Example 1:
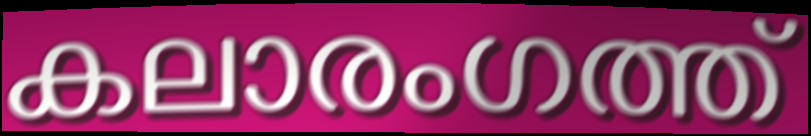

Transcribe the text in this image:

കലാരംഗത്ത്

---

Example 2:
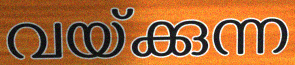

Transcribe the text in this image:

വയ്‌ക്കുന്ന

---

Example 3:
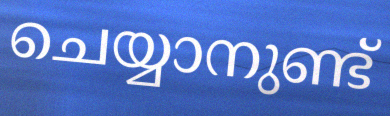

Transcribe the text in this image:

ചെയ്യാനുണ്ട്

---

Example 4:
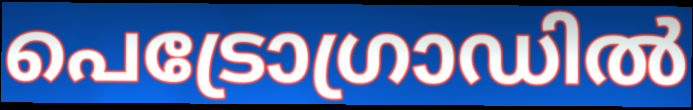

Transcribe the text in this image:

പെട്രോഗ്രാഡിൽ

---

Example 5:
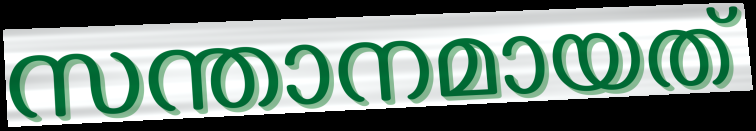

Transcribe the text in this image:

സന്താനമായത്